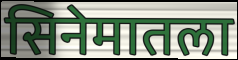
सिनेमातला